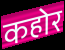
कहोर